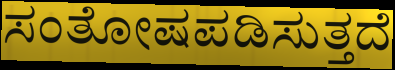
ಸಂತೋಷಪಡಿಸುತ್ತದೆ